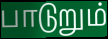
பாடுறும்